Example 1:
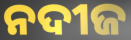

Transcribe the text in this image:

ନଦୀଜ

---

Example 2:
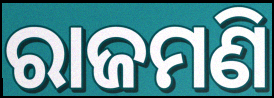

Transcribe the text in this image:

ରାଜମଣି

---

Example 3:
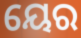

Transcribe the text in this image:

ୟେର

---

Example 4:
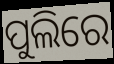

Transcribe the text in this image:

ପୁଲିରେ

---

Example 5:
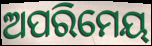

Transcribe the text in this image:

ଅପରିମେୟ